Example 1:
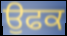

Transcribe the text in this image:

ਉਫਕ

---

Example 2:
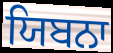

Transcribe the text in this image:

ਯਿਬਨਾ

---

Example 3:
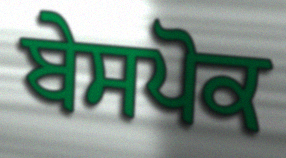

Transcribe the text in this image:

ਬੇਸਪੋਕ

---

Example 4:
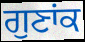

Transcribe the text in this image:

ਗੁਣਾਂਕ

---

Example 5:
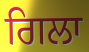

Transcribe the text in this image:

ਗਿਲਾ